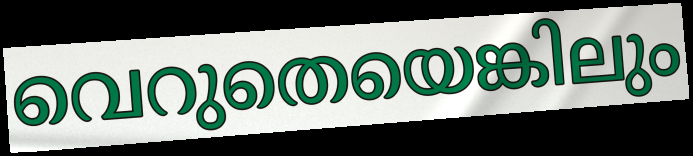
വെറുതെയെങ്കിലും